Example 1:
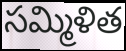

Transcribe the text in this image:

సమ్మిళిత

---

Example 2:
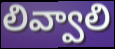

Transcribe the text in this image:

లివ్వాలి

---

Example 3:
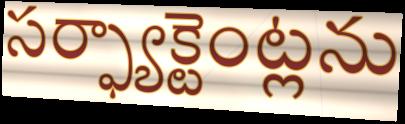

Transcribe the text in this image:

సర్ఫ్యాక్టెంట్లను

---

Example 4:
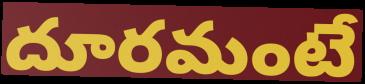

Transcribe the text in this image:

దూరమంటే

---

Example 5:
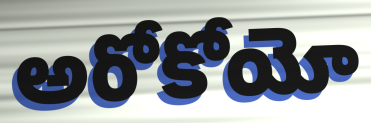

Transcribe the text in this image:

అరోకోయో